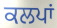
ਕਲਪਾਂ